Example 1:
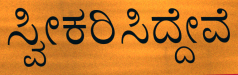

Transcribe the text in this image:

ಸ್ವೀಕರಿಸಿದ್ದೇವೆ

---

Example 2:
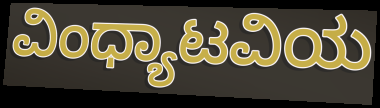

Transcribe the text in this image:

ವಿಂಧ್ಯಾಟವಿಯ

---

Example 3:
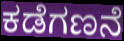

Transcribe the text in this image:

ಕಡೆಗಣನೆ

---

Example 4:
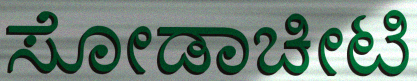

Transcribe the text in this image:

ಸೋಡಾಚೀಟಿ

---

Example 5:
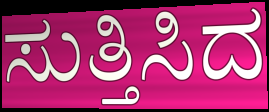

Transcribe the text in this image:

ಸುತ್ತಿಸಿದ